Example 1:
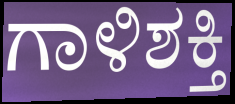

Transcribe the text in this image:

ಗಾಳಿಶಕ್ತಿ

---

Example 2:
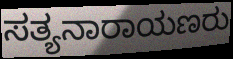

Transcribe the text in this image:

ಸತ್ಯನಾರಾಯಣರು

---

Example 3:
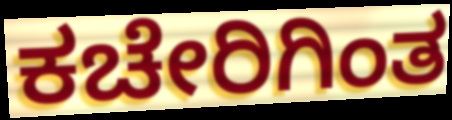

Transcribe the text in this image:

ಕಚೇರಿಗಿಂತ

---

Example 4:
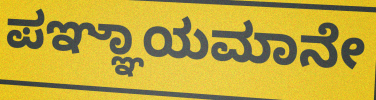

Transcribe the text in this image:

ಪಞ್ಞಾಯಮಾನೇ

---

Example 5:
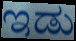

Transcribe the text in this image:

ಇಡು